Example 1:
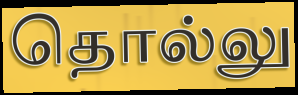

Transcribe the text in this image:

தொல்லு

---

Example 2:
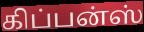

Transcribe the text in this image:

கிப்பன்ஸ்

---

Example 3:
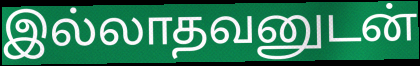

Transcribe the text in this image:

இல்லாதவனுடன்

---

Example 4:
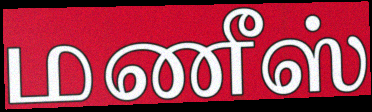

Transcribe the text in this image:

மணீஸ்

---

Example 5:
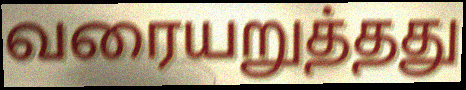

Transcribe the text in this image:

வரையறுத்தது